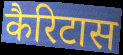
कैरिटास